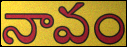
నావం